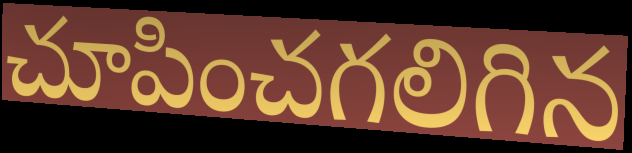
చూపించగలిగిన